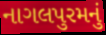
નાગલપુરમનું